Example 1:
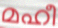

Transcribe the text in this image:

മഹീ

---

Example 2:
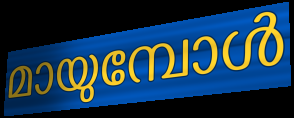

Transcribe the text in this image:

മായുമ്പോൾ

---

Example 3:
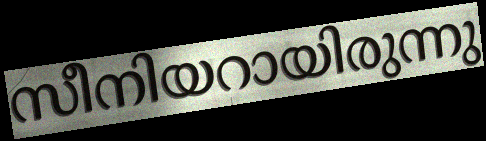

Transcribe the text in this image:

സീനിയറായിരുന്നു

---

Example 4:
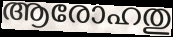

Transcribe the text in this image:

ആരോഹതു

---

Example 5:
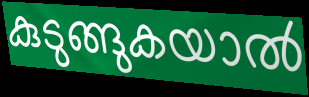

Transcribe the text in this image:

കുടുങ്ങുകയാൽ